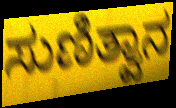
ಸುಣಿತ್ವಾನ